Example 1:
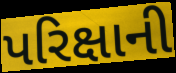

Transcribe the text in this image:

પરિક્ષાની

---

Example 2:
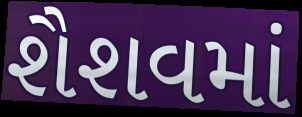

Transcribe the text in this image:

શૈશવમાં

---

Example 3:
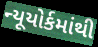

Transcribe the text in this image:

ન્યૂયોર્કમાંથી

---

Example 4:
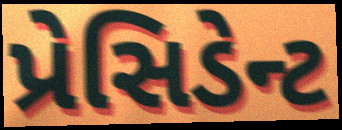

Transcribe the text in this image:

પ્રેસિડેન્ટ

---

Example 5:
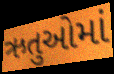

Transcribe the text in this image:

ઋતુઓમાં